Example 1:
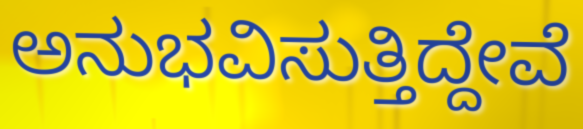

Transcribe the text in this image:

ಅನುಭವಿಸುತ್ತಿದ್ದೇವೆ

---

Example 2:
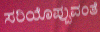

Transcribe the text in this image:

ಸರಿಯೊಪ್ಪುವಂತೆ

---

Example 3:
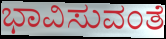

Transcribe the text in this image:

ಭಾವಿಸುವಂತೆ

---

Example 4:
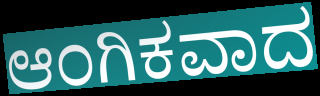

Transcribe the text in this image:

ಆಂಗಿಕವಾದ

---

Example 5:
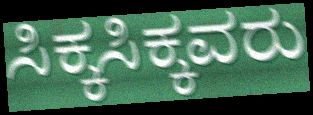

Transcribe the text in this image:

ಸಿಕ್ಕಸಿಕ್ಕವರು